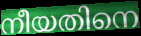
നീയതിനെ